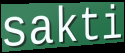
sakti